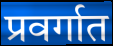
प्रवर्गात